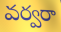
వర్వరా